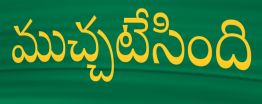
ముచ్చటేసింది